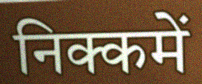
निक्कमें